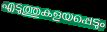
എടുത്തുകളയപ്പെടും